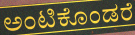
ಅಂಟಿಕೊಂಡರೆ